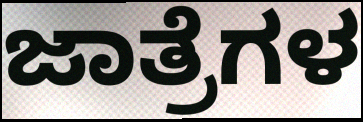
ಜಾತ್ರೆಗಳ